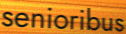
senioribus